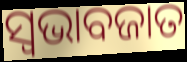
ସ୍ୱଭାବଜାତ